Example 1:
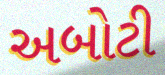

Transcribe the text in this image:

અબોટી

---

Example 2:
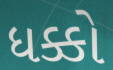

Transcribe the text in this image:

ધક્કો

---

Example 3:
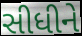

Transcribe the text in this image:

સીધીને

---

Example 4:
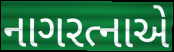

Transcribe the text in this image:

નાગરત્નાએ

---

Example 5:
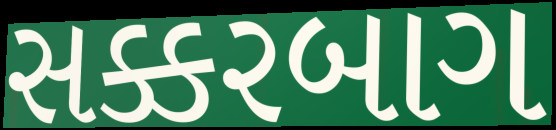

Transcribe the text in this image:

સક્કરબાગ